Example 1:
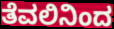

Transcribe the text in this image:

ತೆವಲಿನಿಂದ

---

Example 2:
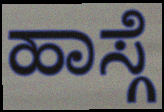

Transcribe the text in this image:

ಹಾಸ್ಗೆ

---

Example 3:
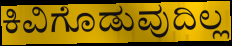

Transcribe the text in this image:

ಕಿವಿಗೊಡುವುದಿಲ್ಲ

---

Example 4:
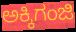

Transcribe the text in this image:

ಅಕ್ಕಿಗಂಜಿ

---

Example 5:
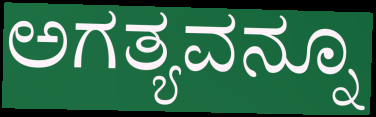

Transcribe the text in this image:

ಅಗತ್ಯವನ್ನೂ